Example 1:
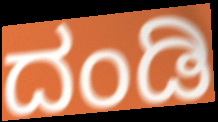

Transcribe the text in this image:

ದಂಡಿ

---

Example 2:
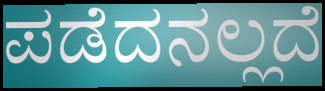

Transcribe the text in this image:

ಪಡೆದನಲ್ಲದೆ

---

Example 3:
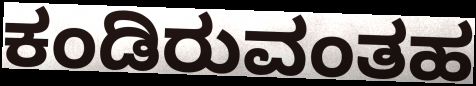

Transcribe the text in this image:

ಕಂಡಿರುವಂತಹ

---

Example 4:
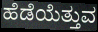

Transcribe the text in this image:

ಹೆಡೆಯೆತ್ತುವ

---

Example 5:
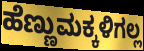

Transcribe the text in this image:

ಹೆಣ್ಣುಮಕ್ಕಳಿಗಲ್ಲ